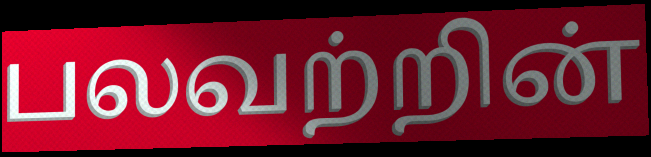
பலவற்றின்